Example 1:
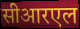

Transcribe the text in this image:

सीआरएल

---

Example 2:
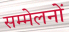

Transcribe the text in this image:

सम्‍मेलनों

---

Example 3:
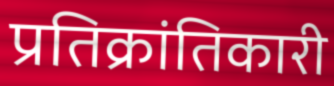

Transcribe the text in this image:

प्रतिक्रांतिकारी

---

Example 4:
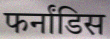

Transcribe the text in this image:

फर्नांडिस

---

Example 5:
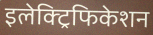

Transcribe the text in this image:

इलेक्ट्रिफिकेशन